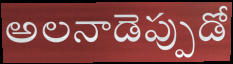
అలనాడెప్పుడో